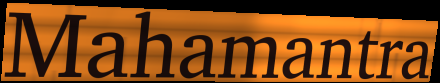
Mahamantra